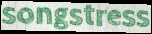
songstress